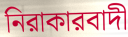
নিরাকারবাদী